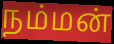
நம்மன்